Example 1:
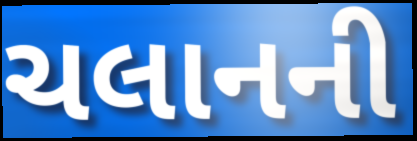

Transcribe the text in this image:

ચલાનની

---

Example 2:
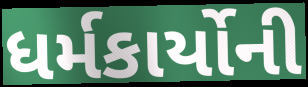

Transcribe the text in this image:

ધર્મકાર્યોની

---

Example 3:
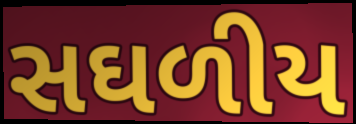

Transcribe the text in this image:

સઘળીય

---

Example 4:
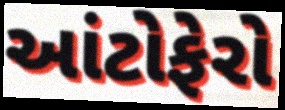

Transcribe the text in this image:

આંટોફેરો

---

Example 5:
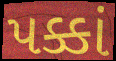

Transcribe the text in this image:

પક્કાં